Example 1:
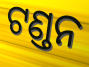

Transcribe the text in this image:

ଟଣ୍ଡନ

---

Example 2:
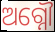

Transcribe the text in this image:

ଅଗ୍ନୌ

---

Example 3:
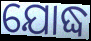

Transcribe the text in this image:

ଯୋଦ୍ଧ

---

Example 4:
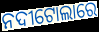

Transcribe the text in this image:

ନଦୀଟୋଲାରେ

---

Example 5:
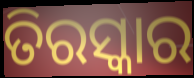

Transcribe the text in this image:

ତିରସ୍କାର